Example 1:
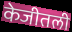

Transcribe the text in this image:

केजीतली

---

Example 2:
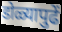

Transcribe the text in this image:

डोळ्यापुढें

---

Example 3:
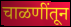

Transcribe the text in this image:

चाळणींतून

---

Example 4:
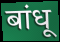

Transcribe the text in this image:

बांधू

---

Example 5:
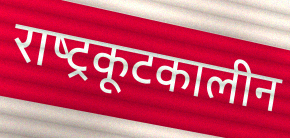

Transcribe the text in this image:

राष्ट्रकूटकालीन